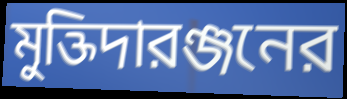
মুক্তিদারঞ্জনের